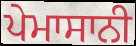
ਪੇਮਾਸਾਨੀ